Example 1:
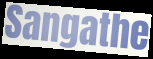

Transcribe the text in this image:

Sangathe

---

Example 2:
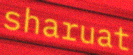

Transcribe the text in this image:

sharuat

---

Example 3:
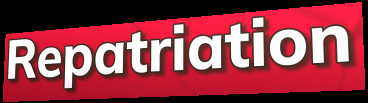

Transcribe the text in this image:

Repatriation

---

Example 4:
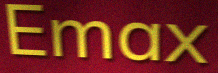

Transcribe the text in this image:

Emax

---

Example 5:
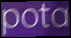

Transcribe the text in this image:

pota